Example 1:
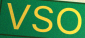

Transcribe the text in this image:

VSO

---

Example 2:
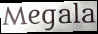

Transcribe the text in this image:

Megala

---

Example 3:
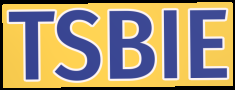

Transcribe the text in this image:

TSBIE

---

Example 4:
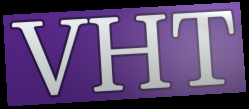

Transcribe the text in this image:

VHT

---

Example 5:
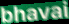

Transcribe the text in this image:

bhavai